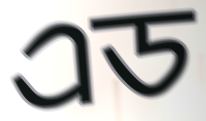
এড